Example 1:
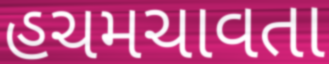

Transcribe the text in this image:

હચમચાવતા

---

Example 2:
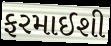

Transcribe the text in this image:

ફરમાઈશી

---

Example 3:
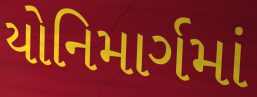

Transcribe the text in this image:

યોનિમાર્ગમાં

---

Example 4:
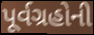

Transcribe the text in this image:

પૂર્વગ્રહોની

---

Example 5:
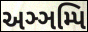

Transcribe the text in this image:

અઞ્ઞમ્પિ